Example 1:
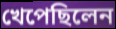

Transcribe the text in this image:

খেপেছিলেন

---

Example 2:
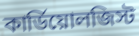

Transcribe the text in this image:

কার্ডিয়োলজিস্ট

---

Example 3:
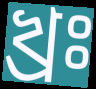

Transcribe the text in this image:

খ্রঃ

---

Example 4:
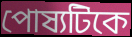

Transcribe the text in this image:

পোষ্যটিকে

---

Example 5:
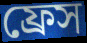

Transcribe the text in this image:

ফ্রেস